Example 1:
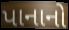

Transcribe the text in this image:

પાનાનો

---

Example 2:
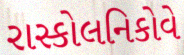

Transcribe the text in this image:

રાસ્કોલનિકોવે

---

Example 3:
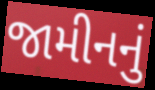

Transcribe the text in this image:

જામીનનું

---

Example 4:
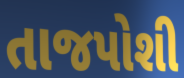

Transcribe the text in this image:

તાજપોશી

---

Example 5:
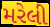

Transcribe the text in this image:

મરેલી